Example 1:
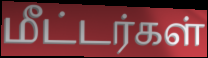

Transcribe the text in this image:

மீட்டர்கள்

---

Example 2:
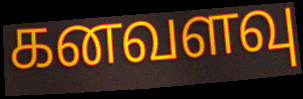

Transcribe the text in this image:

கனவளவு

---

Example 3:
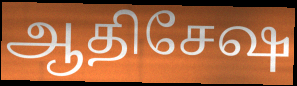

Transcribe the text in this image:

ஆதிசேஷ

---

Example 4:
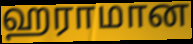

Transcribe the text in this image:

ஹராமான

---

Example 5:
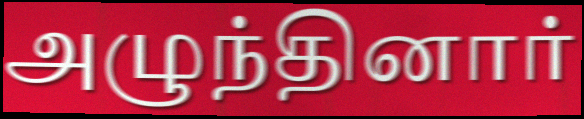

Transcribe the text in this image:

அழுந்தினார்